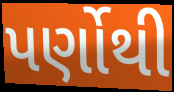
પર્ણોથી